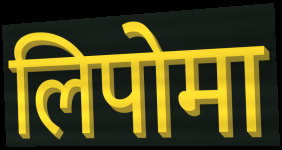
लिपोमा